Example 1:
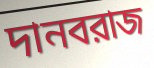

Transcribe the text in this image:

দানবরাজ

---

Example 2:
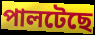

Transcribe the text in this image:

পালটেছে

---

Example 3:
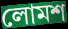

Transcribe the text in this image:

লোমশ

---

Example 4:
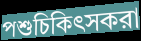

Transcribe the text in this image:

পশুচিকিৎসকরা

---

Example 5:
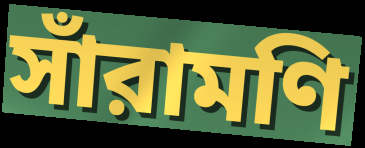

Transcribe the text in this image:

সাঁরামণি